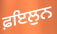
ਫ਼ਇਲੁਨ